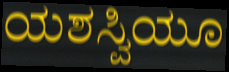
ಯಶಸ್ವಿಯೂ